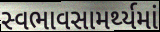
સ્વભાવસામર્થ્યમાં